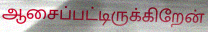
ஆசைப்பட்டிருக்கிறேன்